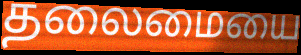
தலைமையை